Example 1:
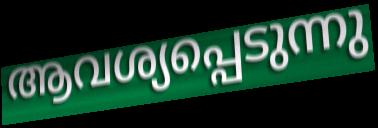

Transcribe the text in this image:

ആവശ്യപ്പെടുന്നു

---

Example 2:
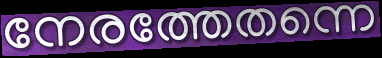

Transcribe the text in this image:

നേരത്തേതന്നെ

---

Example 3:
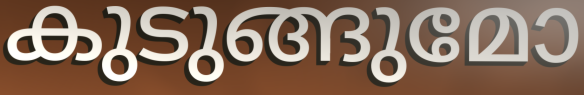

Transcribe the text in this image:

കുടുങ്ങുമോ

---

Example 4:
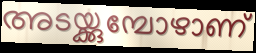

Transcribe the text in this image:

അടയ്ക്കുമ്പോഴാണ്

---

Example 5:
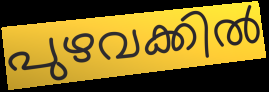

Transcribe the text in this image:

പുഴവക്കിൽ